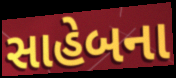
સાહેબના